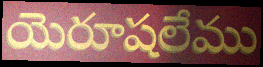
యెరూషలేము